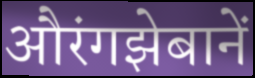
औरंगझेबानें